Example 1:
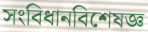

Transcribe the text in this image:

সংবিধানবিশেষজ্ঞ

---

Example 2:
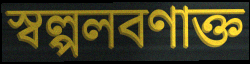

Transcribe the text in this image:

স্বল্পলবণাক্ত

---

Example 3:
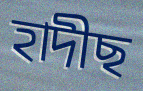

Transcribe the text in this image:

হাদীছ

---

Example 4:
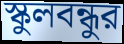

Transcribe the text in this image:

স্কুলবন্ধুর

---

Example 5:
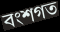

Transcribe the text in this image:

বংশগত